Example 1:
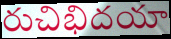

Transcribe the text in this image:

రుచిభిదయా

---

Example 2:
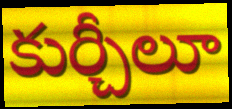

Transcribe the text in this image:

కుర్చీలూ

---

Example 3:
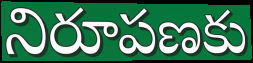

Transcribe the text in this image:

నిరూపణకు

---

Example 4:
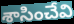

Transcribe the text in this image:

శాసించేవి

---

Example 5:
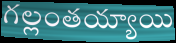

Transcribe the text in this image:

గల్లంతయ్యాయి